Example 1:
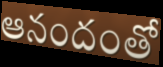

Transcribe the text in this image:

ఆనందంతో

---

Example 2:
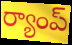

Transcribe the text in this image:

ర్యాంప్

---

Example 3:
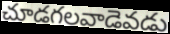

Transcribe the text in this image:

చూడగలవాడెవడు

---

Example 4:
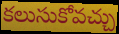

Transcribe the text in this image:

కలుసుకోవచ్చు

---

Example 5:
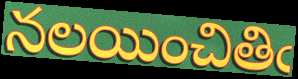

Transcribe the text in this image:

నలయించితిఁ